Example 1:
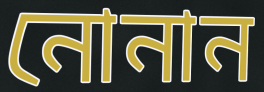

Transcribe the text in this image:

নোনান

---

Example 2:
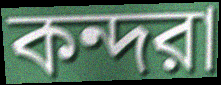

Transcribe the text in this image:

কন্দরা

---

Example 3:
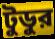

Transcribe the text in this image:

টুডুর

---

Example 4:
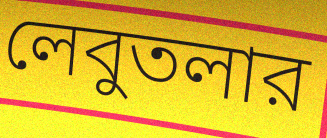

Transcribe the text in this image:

লেবুতলার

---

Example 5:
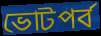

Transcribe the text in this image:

ভোটপর্ব